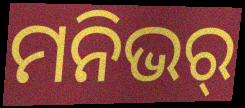
ମନିଭର୍